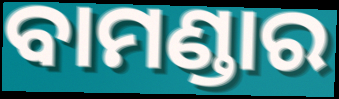
ବାମଣ୍ଡାର